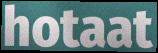
hotaat